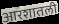
आरशातली